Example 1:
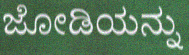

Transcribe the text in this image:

ಜೋಡಿಯನ್ನು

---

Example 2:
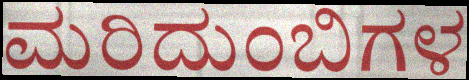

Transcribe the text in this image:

ಮರಿದುಂಬಿಗಳ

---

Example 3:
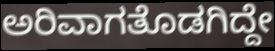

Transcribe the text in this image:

ಅರಿವಾಗತೊಡಗಿದ್ದೇ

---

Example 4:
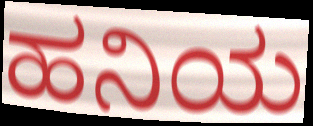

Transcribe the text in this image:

ಹನಿಯ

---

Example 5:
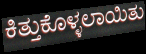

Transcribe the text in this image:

ಕಿತ್ತುಕೊಳ್ಳಲಾಯಿತು